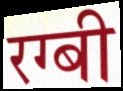
रग्‍बी